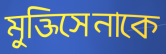
মুক্তিসেনাকে